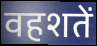
वहशतें